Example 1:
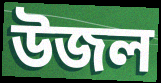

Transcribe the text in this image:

উজল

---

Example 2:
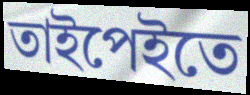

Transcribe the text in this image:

তাইপেইতে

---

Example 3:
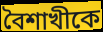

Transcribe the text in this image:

বৈশাখীকে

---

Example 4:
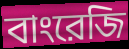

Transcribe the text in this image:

বাংরেজি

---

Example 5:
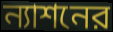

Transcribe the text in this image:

ন্যাশনের